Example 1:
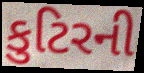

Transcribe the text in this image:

કુટિરની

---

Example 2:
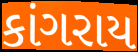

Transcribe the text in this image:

કાંગરાય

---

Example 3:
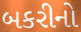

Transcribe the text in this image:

બકરીનો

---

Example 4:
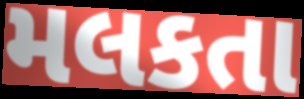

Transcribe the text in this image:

મલકતા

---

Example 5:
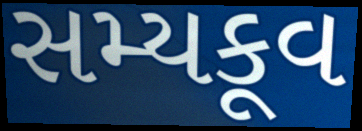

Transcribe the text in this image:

સમ્યકૂવ